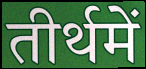
तीर्थमें